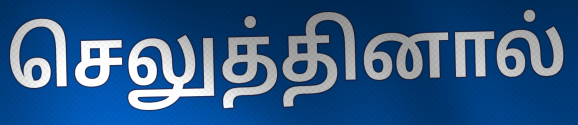
செலுத்தினால்